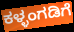
ಕಳ್ಳಂಗಡಿಗೆ